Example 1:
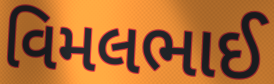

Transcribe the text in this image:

વિમલભાઈ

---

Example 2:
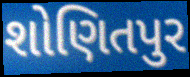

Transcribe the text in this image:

શોણિતપુર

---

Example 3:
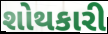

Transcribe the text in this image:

શોથકારી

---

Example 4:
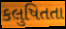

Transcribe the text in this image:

કલુષિતતા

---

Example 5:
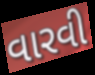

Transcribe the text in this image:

વારવી